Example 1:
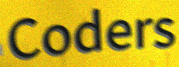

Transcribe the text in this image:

Coders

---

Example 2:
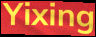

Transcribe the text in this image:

Yixing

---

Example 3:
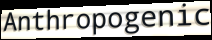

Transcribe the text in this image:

Anthropogenic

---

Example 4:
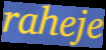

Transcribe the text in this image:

raheje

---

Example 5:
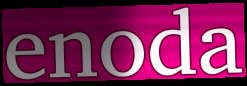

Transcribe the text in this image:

enoda